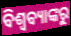
ବିଶ୍ୱବ୍ୟାଙ୍କରୁ